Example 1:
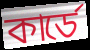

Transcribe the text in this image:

কার্ডে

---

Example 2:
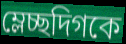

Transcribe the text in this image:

ম্লেচ্ছদিগকে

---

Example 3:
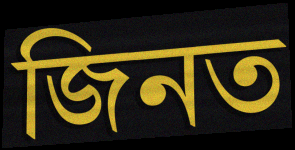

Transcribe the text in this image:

জিনত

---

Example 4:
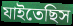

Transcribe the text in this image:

যাইতেছিস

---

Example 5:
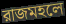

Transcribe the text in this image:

রাজমহলে